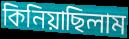
কিনিয়াছিলাম